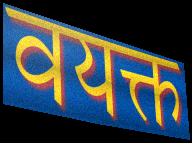
वयक्त